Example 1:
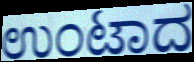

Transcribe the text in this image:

ಉಂಟಾದ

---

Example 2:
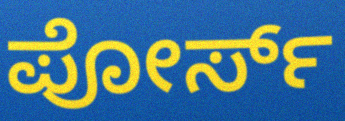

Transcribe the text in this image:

ಪೋರ್ಸ್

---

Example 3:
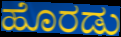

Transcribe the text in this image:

ಹೊರಡು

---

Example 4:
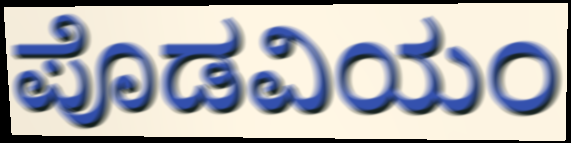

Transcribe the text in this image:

ಪೊಡವಿಯಂ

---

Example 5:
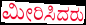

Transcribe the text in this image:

ಮೀರಿಸಿದರು